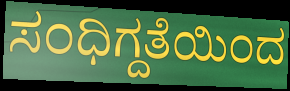
ಸಂಧಿಗ್ದತೆಯಿಂದ